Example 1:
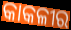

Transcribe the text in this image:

କାକଳୀର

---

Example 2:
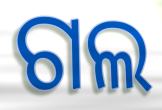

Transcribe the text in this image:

ଗଲ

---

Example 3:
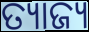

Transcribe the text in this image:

ତ୍ୟାଜ୍ୟ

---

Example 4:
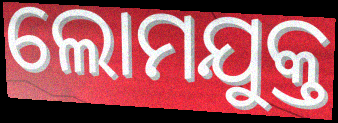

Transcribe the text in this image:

ଲୋମଯୁକ୍ତ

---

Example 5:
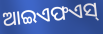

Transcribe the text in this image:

ଆଇଏଫଏସ୍